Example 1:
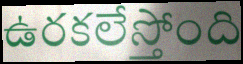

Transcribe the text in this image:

ఉరకలేస్తోంది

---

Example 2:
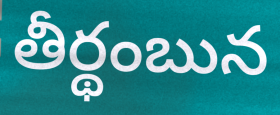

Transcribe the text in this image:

తీర్థంబున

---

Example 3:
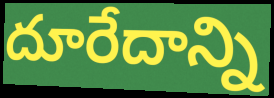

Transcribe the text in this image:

దూరేదాన్ని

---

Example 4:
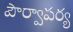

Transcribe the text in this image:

పౌర్వాపర్య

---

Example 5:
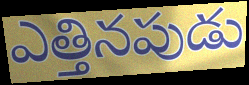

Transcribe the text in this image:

ఎత్తినపుడు